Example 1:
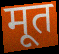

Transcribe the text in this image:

मूत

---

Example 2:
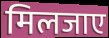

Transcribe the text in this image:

मिलजाए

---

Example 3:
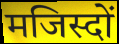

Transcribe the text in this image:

मजिस्दों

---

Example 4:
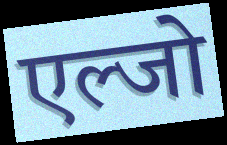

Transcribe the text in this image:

एल्जो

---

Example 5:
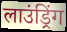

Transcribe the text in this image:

लाउंड्रिंग